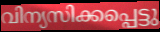
വിന്യസിക്കപ്പെട്ടു